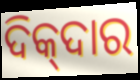
ଦିକ୍‍ଦାର